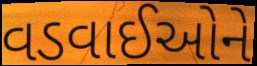
વડવાઈઓને